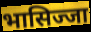
भासिज्जा